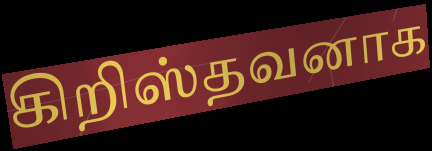
கிறிஸ்தவனாக